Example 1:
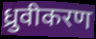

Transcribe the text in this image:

ध्रुवीकरण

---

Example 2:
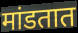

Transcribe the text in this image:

मांडतात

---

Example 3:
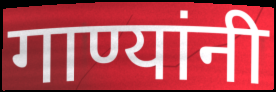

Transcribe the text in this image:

गाण्यांनी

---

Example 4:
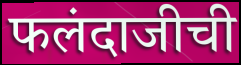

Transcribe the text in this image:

फलंदाजीची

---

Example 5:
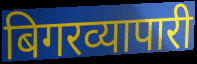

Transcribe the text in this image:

बिगरव्यापारी